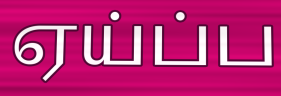
ஏய்ப்ப